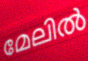
മേലിൽ